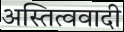
अस्तित्ववादी